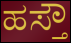
ಹಸ್ತೌ